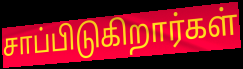
சாப்பிடுகிறார்கள்